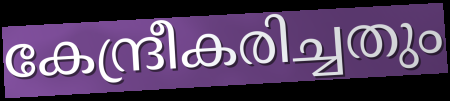
കേന്ദ്രീകരിച്ചതും